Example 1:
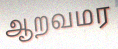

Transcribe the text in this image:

ஆறவமர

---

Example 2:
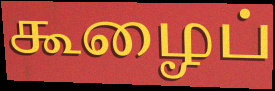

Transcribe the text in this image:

கூழைப்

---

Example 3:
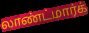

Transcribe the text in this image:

லாண்ட்மார்க்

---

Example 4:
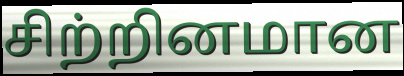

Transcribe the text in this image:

சிற்றினமான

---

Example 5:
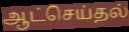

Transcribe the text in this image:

ஆட்செய்தல்